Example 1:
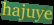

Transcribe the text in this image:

hajuye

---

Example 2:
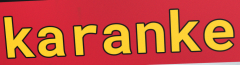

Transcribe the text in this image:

karanke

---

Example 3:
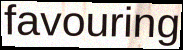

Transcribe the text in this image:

favouring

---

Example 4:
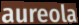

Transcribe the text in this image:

aureola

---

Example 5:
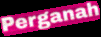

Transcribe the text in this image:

Perganah